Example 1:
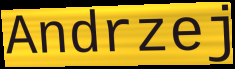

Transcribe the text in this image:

Andrzej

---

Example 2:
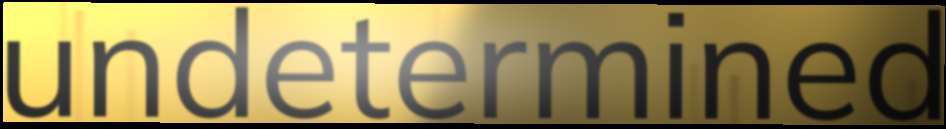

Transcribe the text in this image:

undetermined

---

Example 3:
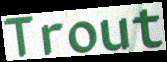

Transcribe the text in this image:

Trout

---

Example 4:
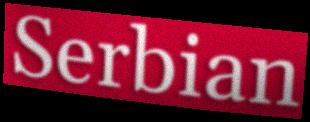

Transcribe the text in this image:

Serbian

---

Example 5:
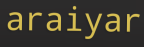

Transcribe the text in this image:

araiyar